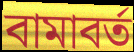
বামাবর্ত